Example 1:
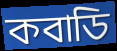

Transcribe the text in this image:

কবাডি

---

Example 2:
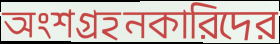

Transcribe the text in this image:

অংশগ্রহনকারিদের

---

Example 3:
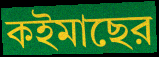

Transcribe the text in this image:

কইমাছের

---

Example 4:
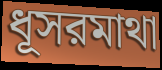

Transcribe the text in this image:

ধূসরমাথা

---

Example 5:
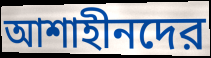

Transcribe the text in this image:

আশাহীনদের